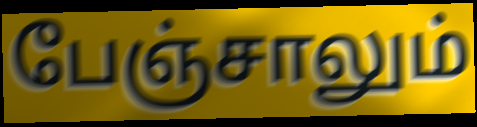
பேஞ்சாலும்